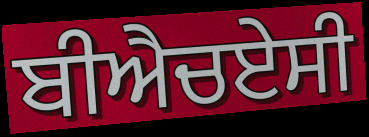
ਬੀਐਚਏਸੀ